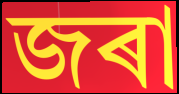
জৰা